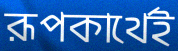
রূপকার্থেই